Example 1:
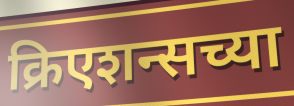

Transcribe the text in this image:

क्रिएशन्सच्या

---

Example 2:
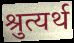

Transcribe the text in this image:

श्रुत्यर्थ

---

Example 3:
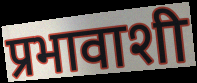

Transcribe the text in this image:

प्रभावाशी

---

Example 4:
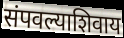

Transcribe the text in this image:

संपवल्याशिवाय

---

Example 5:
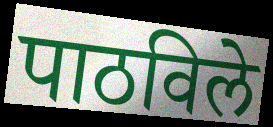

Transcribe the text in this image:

पाठविले